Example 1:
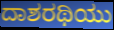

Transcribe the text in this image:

ದಾಶರಥಿಯು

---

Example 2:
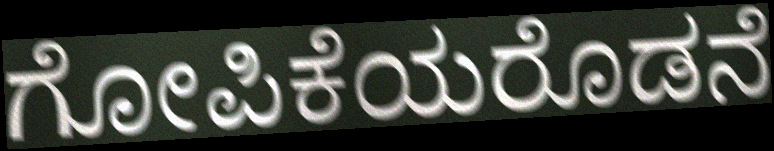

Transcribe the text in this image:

ಗೋಪಿಕೆಯರೊಡನೆ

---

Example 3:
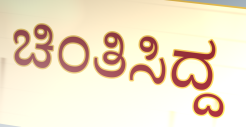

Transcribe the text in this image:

ಚಿಂತಿಸಿದ್ದ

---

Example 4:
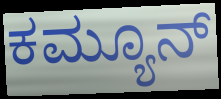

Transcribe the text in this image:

ಕಮ್ಯೂನ್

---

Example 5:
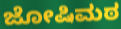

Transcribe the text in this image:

ಜೋಷಿಮಠ